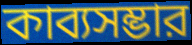
কাব্যসম্ভার